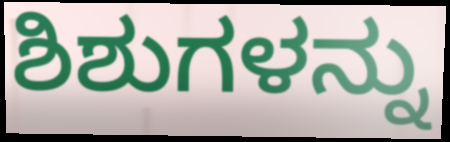
ಶಿಶುಗಳನ್ನು